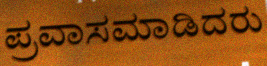
ಪ್ರವಾಸಮಾಡಿದರು